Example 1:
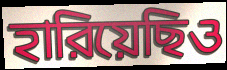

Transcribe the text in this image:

হারিয়েছিও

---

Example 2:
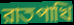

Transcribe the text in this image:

রাতপাখি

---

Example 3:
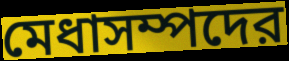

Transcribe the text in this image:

মেধাসম্পদের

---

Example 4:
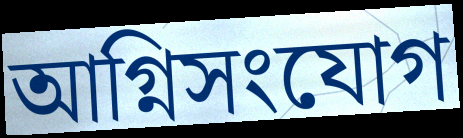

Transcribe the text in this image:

আগ্নিসংযোগ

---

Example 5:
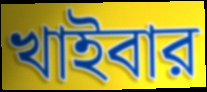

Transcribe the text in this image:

খাইবার